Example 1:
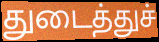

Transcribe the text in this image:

துடைத்துச்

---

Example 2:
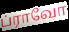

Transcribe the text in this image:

ப்ராவோ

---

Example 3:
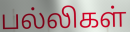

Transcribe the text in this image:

பல்லிகள்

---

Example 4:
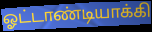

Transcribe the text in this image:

ஓட்டாண்டியாக்கி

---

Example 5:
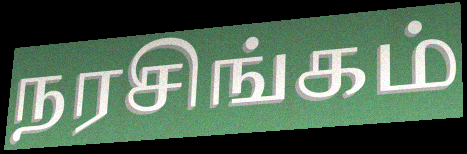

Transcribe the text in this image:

நரசிங்கம்